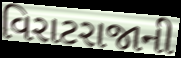
વિરાટરાજાની